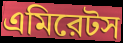
এমিরেটস